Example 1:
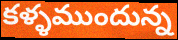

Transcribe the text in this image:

కళ్ళముందున్న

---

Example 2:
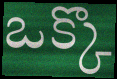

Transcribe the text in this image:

ఒక్కొ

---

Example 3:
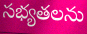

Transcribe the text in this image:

సభ్యతలను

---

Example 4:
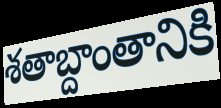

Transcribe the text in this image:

శతాబ్దాంతానికి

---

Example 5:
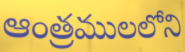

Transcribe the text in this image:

ఆంత్రములలోని